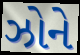
ઝોને